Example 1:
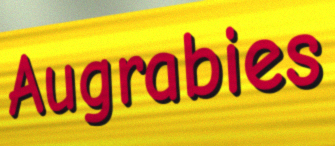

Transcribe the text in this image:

Augrabies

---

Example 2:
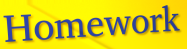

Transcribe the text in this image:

Homework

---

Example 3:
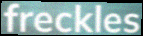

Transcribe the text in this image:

freckles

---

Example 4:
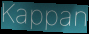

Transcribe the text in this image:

Kappan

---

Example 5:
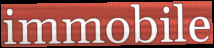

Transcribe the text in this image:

immobile